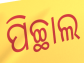
ପିଚ୍ଛାଲ